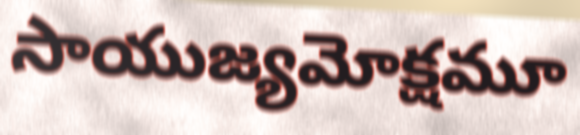
సాయుజ్యమోక్షమూ